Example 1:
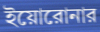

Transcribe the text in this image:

ইয়োরোনার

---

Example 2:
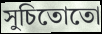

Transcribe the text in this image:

সুচিতোতো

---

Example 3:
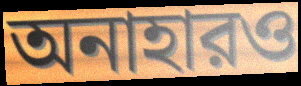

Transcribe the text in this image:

অনাহারও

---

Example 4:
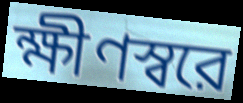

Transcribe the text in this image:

ক্ষীণস্বরে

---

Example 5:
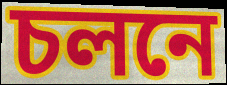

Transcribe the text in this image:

চলনে